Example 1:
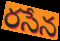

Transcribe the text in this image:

రసేన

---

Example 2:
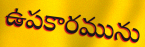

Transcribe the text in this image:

ఉపకారమును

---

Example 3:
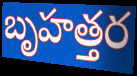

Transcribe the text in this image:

బృహత్తర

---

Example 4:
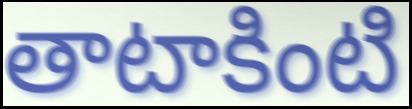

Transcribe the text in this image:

తాటాకింటి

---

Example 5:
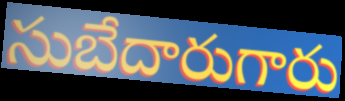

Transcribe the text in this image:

సుబేదారుగారు